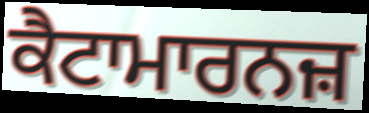
ਕੈਟਾਮਾਰਨਜ਼